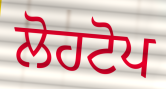
ਲੋਹਟੋਪ